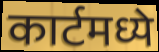
कार्टमध्ये